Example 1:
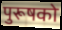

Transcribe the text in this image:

पुरूषको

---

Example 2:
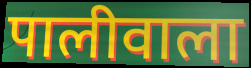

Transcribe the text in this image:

पालीवाला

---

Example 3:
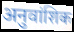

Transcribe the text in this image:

अनुवांशिक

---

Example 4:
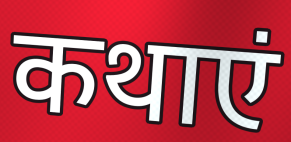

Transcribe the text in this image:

कथाएं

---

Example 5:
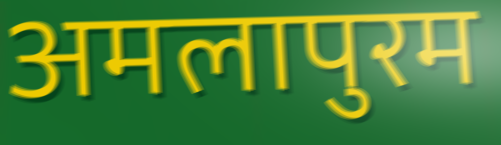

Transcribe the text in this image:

अमलापुरम